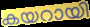
കയറായി